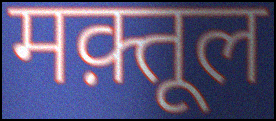
मक़्तूल